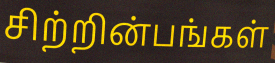
சிற்றின்பங்கள்